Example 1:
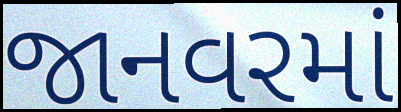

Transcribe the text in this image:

જાનવરમાં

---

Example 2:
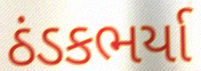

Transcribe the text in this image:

ઠંડકભર્યા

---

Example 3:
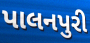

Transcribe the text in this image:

પાલનપુરી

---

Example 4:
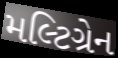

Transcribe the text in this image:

મલ્ટિગ્રેન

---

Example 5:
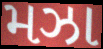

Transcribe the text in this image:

મઝા